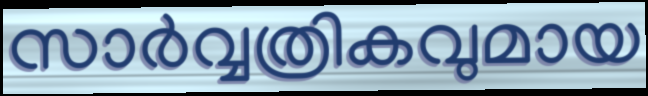
സാർവ്വത്രികവുമായ